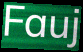
Fauj